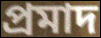
প্রমাদ